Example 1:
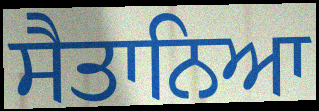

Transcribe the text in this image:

ਸੈਤਾਨਿਆ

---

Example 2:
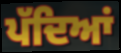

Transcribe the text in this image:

ਪੱਦਿਆਂ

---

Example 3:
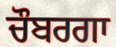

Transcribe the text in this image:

ਚੌਬਰਗਾ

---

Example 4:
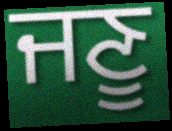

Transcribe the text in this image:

ਜਣੂ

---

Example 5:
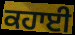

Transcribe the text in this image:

ਕਹਾਈ